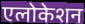
एलोकेशन